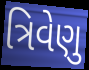
ત્રિવેણુ